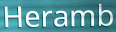
Heramb